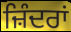
ਜ਼ਿੰਦਰਾਂ